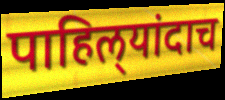
पाहिल्यांदाच